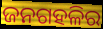
ଜନଗହଳିର